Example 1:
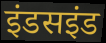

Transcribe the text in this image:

इंडसइंड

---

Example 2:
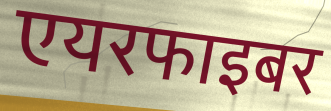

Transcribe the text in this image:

एयरफाइबर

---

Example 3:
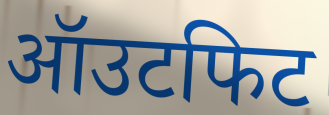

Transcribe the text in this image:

ऑउटफिट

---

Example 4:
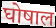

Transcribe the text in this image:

घोषाल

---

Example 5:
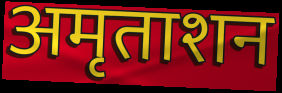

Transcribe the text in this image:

अमृताशन